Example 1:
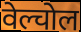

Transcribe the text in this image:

वेल्चोल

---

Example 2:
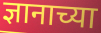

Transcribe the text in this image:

ज्ञानाच्या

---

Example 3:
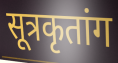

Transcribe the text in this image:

सूत्रकृतांग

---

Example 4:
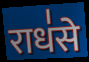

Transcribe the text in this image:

राध॑से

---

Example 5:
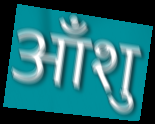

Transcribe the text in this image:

आँशु